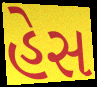
હેસ